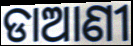
ଡାଆଣୀ